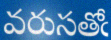
వరుసతోఁ